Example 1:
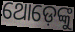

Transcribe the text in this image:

ଥୋଡ଼େଙ୍କୁ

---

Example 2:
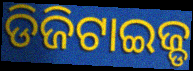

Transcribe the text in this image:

ଡିଜିଟାଇଜ୍ଡ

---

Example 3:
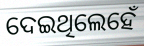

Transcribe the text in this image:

ଦେଇଥିଲେହେଁ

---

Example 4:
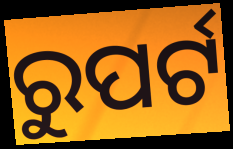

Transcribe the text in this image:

ରୁପର୍ଟ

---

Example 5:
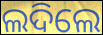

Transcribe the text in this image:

ଲଦିଲେ